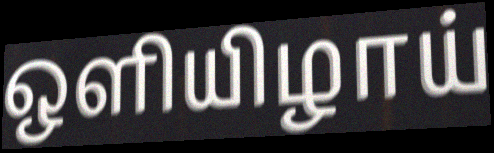
ஒளியிழாய்